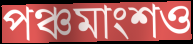
পঞ্চমাংশও